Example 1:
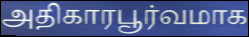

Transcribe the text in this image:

அதிகாரபூர்வமாக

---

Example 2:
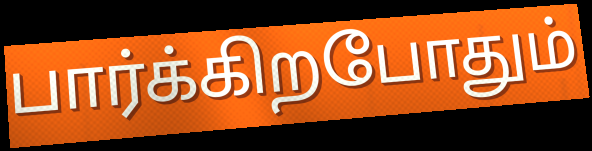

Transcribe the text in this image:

பார்க்கிறபோதும்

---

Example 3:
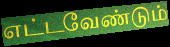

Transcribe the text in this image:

எட்டவேண்டும்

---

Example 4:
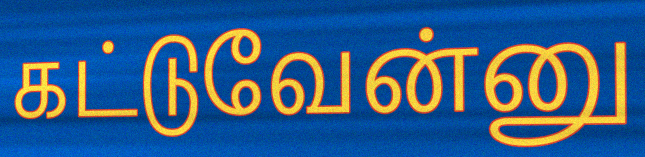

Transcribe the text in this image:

கட்டுவேன்னு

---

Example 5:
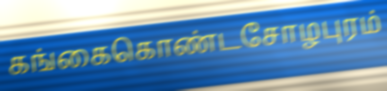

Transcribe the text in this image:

கங்கைகொண்டசோழபுரம்